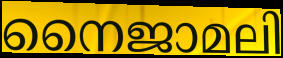
നൈജാമലി